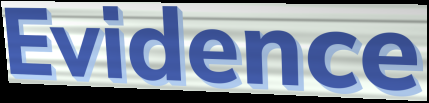
Evidence